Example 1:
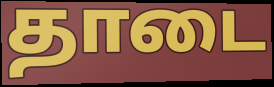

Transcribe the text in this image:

தாடை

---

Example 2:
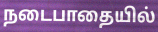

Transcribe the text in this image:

நடைபாதையில்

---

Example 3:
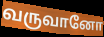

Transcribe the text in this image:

வருவானோ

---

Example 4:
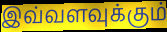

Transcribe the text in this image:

இவ்வளவுக்கும்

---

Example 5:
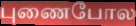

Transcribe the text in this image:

புணைபோல